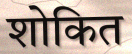
शोकित